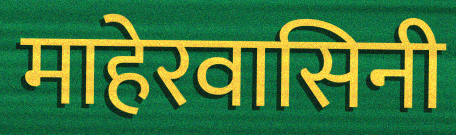
माहेरवासिनी